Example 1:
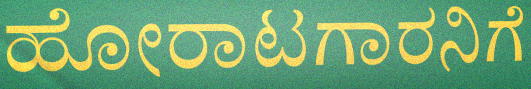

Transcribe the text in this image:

ಹೋರಾಟಗಾರನಿಗೆ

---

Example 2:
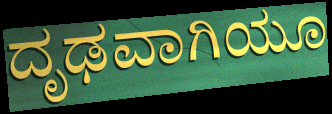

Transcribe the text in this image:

ದೃಢವಾಗಿಯೂ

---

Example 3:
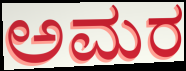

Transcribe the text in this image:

ಅಮರ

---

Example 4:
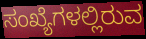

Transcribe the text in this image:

ಸಂಖ್ಯೆಗಳಲ್ಲಿರುವ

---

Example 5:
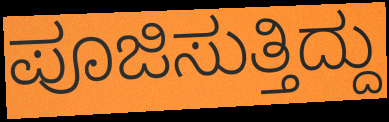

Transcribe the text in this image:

ಪೂಜಿಸುತ್ತಿದ್ದು